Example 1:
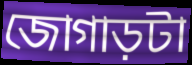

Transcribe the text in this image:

জোগাড়টা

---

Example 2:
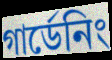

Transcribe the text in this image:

গার্ডেনিং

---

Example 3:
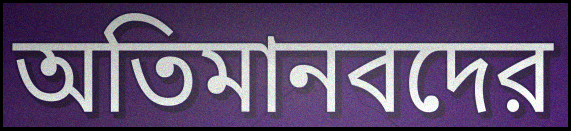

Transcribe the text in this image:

অতিমানবদের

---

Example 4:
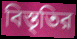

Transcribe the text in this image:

বিস্তৃতির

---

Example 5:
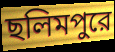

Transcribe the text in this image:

ছলিমপুরে